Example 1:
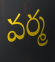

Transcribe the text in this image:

వర్మ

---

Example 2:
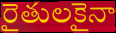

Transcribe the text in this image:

రైతులకైనా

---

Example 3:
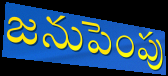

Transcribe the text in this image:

జనుపెంపు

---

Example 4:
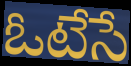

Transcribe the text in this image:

ఓటేసే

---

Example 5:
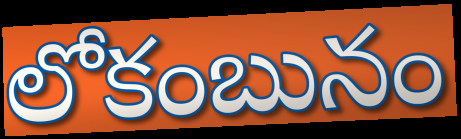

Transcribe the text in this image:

లోకంబునం